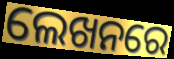
ଲେଖନରେ